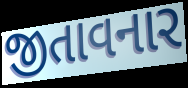
જીતાવનાર